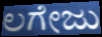
ಲಗೇಜು